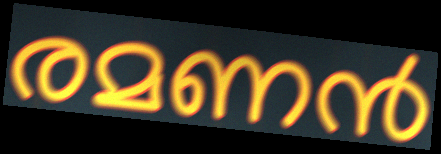
രമണൻ